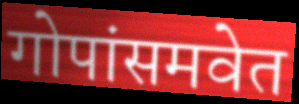
गोपांसमवेत